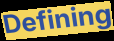
Defining